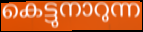
കെട്ടുനാറുന്ന